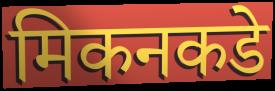
मिकनकडे